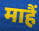
माहैं